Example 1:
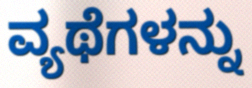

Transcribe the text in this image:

ವ್ಯಥೆಗಳನ್ನು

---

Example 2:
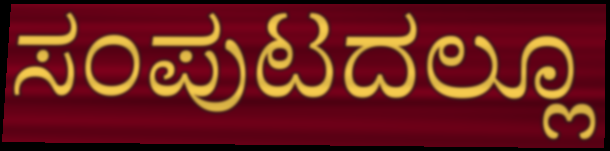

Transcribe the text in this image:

ಸಂಪುಟದಲ್ಲೂ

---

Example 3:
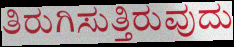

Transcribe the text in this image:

ತಿರುಗಿಸುತ್ತಿರುವುದು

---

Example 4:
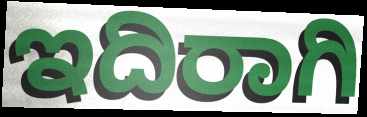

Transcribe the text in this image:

ಇದಿರಾಗಿ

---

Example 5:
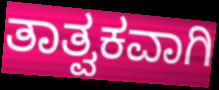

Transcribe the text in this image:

ತಾತ್ವಕವಾಗಿ